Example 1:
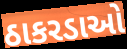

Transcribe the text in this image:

ઠાકરડાઓ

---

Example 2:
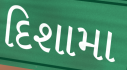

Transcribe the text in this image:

દિશામા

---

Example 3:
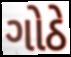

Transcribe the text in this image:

ગોઠે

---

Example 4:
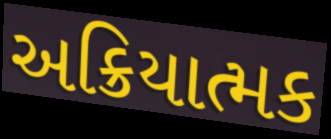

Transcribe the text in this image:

અક્રિયાત્મક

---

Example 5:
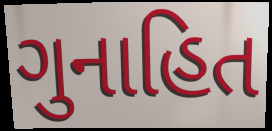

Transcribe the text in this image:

ગુનાહિત